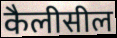
कैलीसील